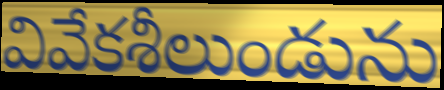
వివేకశీలుండును